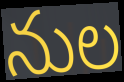
నుల